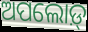
ଅପଲୋଡ଼୍